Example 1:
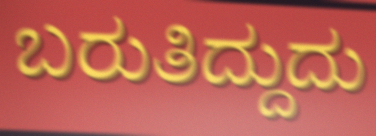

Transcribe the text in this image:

ಬರುತಿದ್ದುದು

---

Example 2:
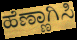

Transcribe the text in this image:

ಹೆಣ್ಣಾಗಿಸಿ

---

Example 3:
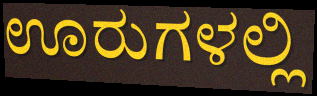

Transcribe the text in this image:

ಊರುಗಳಲ್ಲಿ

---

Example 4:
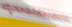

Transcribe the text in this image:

ಮೈಗೂಡಿಸಿಕೊಂಡವರು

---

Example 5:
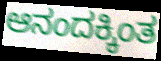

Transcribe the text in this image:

ಆನಂದಕ್ಕಿಂತ